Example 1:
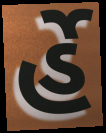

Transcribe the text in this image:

ર્હે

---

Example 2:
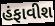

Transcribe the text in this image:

હંફાવીશ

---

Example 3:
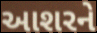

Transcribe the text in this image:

આશરને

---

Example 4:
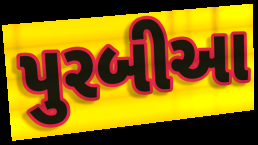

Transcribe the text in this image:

પુરબીઆ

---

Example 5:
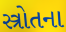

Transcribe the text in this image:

સ્ત્રોતના